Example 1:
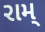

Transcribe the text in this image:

રામ્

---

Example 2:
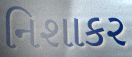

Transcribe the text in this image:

નિશાકર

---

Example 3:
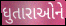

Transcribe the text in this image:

ધુતારાઓને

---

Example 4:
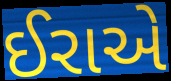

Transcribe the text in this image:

ઈરાએ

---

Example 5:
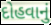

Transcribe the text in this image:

દોહવાનું